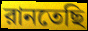
রানতেছি